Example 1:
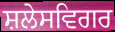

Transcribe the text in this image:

ਸ਼ਲੇਸਵਿਗਰ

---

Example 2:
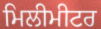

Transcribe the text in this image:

ਮਿਲੀਮੀਟਰ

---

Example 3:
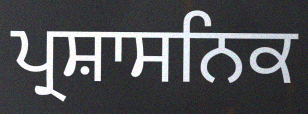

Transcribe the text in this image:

ਪ੍ਰਸ਼ਾਸਨਿਕ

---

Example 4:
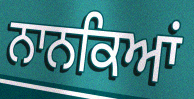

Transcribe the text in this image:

ਨਾਨਕਿਆਂ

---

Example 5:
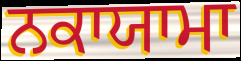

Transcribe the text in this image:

ਨਕਾਯਾਮਾ